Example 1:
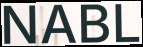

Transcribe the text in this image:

NABL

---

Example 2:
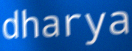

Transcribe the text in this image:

dharya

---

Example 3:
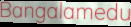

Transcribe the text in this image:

Bangalamedu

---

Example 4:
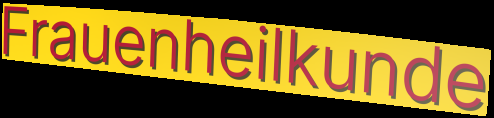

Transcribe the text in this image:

Frauenheilkunde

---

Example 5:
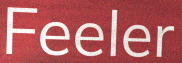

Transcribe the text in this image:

Feeler